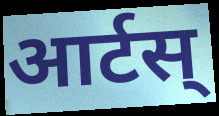
आर्टस्